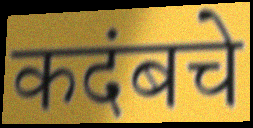
कदंबचे